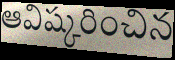
ఆవిష్కరించిన